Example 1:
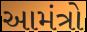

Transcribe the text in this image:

આમંત્રો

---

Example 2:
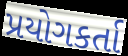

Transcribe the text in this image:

પ્રયોગકર્તા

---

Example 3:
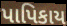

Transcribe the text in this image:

પાપિકાય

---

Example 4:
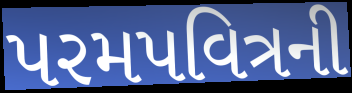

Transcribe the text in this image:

પરમપવિત્રની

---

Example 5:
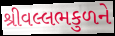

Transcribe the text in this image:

શ્રીવલ્લભકુળને